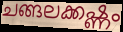
ചങ്ങലക്കഷ്ണം